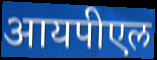
आयपीएल